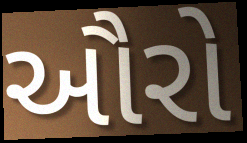
ઔરો